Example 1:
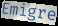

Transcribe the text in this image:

Emigre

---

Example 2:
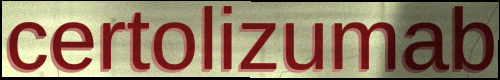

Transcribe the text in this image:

certolizumab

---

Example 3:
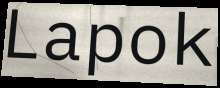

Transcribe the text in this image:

Lapok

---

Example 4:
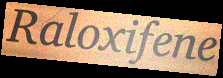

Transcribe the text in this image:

Raloxifene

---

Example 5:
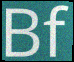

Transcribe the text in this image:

Bf